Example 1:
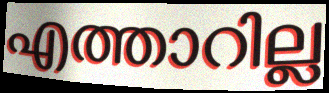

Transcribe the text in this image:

എത്താറില്ല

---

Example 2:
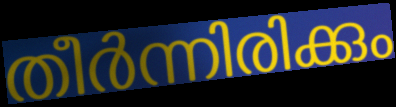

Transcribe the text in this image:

തീർന്നിരിക്കും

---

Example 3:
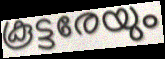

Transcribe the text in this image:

കൂട്ടരേയും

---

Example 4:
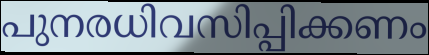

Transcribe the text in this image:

പുനരധിവസിപ്പിക്കണം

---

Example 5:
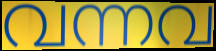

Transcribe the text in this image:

വന്നവ